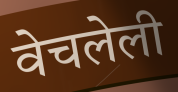
वेचलेली